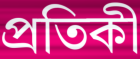
প্ৰতিকী